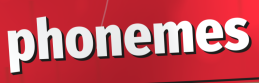
phonemes